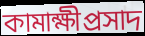
কামাক্ষীপ্রসাদ